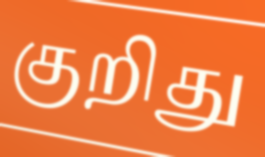
குறிது